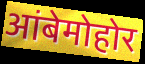
आंबेमोहोर